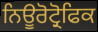
ਨਿਊਰੋਟ੍ਰੋਫਿਕ